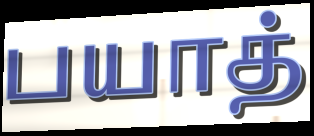
பயாத்